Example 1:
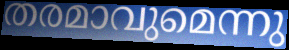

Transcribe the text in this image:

തരമാവുമെന്നു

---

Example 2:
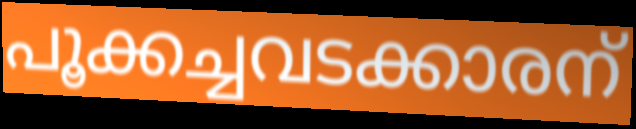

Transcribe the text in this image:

പൂക്കച്ചവടക്കാരന്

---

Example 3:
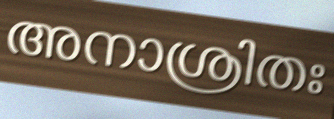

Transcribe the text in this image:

അനാശ്രിതഃ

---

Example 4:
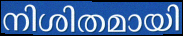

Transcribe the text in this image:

നിശിതമായി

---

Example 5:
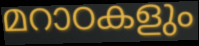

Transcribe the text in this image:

മറാഠകളും